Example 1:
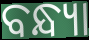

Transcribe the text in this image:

ବନ୍ଧ୍ୟା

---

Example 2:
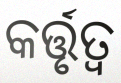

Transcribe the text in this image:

କର୍ତ୍ତୃତ୍ଵ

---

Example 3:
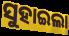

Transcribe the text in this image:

ସୁହାଇଲା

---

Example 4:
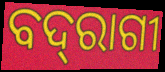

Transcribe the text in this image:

ବଦ୍‌ରାଗୀ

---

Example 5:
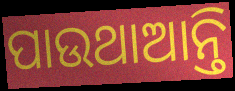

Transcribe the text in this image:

ପାଉଥାଆନ୍ତି